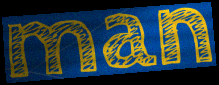
man